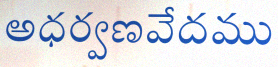
అధర్వణవేదము